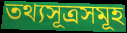
তথ্যসূত্ৰসমূহ